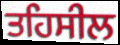
ਤਹਿਸੀਲ